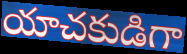
యాచకుడిగా